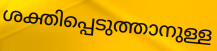
ശക്തിപ്പെടുത്താനുള്ള